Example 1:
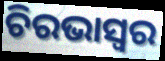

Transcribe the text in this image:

ଚିରଭାସ୍ଵର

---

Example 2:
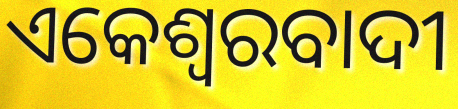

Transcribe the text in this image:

ଏକେଶ୍ଵରବାଦୀ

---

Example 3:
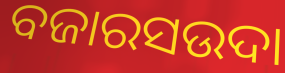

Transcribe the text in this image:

ବଜାରସଉଦା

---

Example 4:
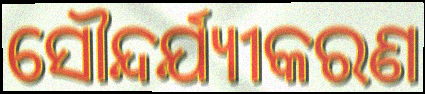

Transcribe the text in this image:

ସୌନ୍ଦର୍ଯ୍ୟୀକରଣ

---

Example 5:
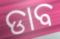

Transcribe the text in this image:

ଡାବ